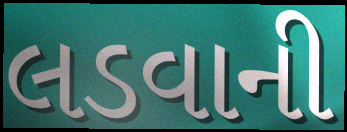
લડવાની